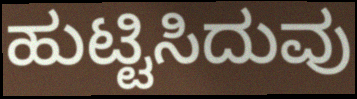
ಹುಟ್ಟಿಸಿದುವು